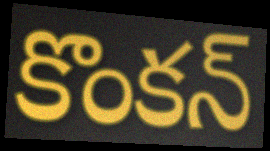
కొంకన్